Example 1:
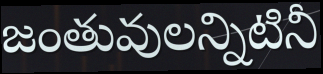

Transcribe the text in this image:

జంతువులన్నిటినీ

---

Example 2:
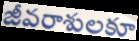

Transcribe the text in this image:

జీవరాశులకూ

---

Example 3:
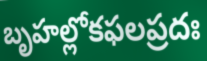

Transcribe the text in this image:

బృహల్లోకఫలప్రదః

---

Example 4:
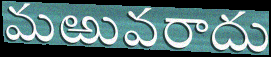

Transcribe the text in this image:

మఱువరాదు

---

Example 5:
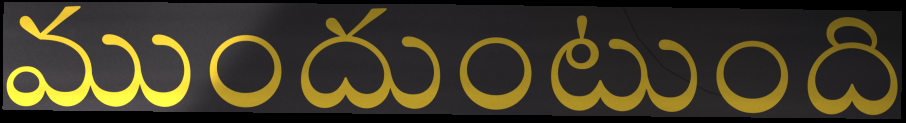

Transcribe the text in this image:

ముందుంటుంది